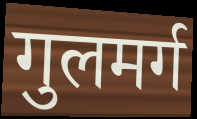
गुलमर्ग